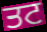
ਤਟ